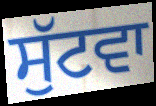
ਸੁੱਟਵਾ